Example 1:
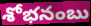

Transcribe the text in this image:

శోభనంబు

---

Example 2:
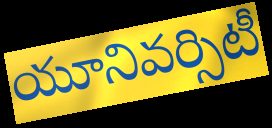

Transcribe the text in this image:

యూనివర్సిటీ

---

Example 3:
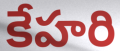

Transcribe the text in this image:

కేహరి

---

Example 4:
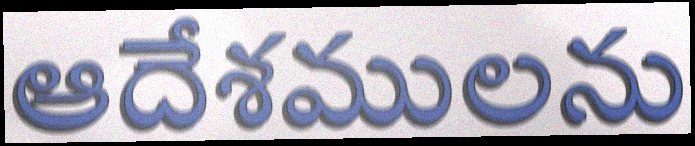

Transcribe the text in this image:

ఆదేశములను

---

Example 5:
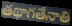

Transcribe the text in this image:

తథాగతేనాతి